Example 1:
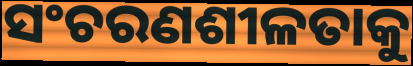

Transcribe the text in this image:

ସଂଚରଣଶୀଳତାକୁ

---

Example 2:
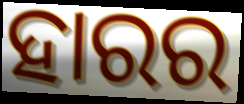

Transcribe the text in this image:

ହାରର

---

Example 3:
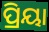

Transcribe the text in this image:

ପ୍ରିୟା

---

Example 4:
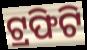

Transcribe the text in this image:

ଟ୍ରଫିଟି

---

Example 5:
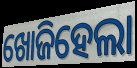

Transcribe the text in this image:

ଖୋଜିହେଲା